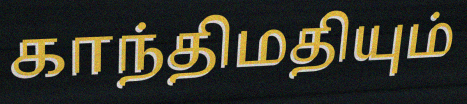
காந்திமதியும்